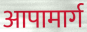
आपामार्ग